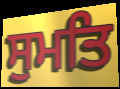
ਸੁਮਤਿ